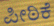
ಪೀಠಿಕೆ